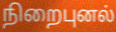
நிறைபுனல்